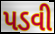
પડવી